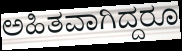
ಅಹಿತವಾಗಿದ್ದರೂ